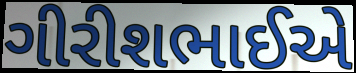
ગીરીશભાઈએ